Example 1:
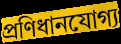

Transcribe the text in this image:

প্ৰণিধানযোগ্য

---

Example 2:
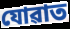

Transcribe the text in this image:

যোৱাত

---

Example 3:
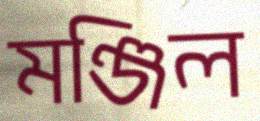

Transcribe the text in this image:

মঞ্জিল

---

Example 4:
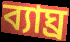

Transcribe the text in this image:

ব্যাঘ্ৰ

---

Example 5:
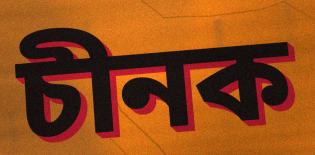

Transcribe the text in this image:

চীনক